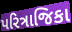
પરિત્રાજિકા